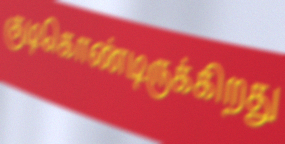
குடிகொண்டிருக்கிறது